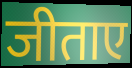
जीताए